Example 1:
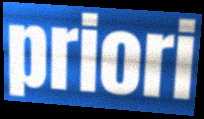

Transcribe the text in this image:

priori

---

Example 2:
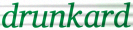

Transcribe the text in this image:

drunkard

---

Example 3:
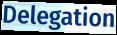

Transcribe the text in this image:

Delegation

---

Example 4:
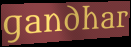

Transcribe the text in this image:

gandhar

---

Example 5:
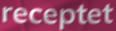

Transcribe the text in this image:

receptet